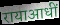
रायाआधीं